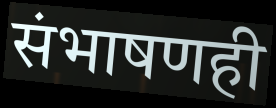
संभाषणही